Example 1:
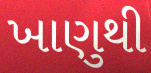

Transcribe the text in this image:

ખાણુથી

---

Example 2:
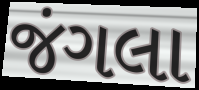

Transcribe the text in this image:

જંગલા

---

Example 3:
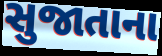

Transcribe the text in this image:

સુજાતાના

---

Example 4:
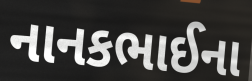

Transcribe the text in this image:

નાનકભાઈના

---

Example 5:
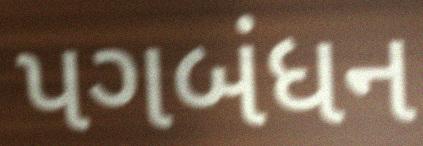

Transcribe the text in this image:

પગબંધન